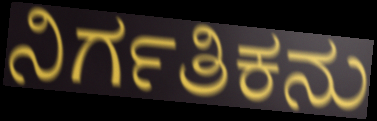
ನಿರ್ಗತಿಕನು